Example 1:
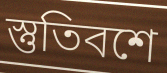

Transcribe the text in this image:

স্তুতিবশে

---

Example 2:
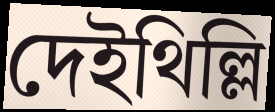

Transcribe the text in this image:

দেইথিল্লি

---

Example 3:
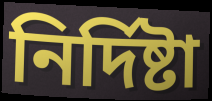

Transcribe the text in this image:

নির্দিষ্টা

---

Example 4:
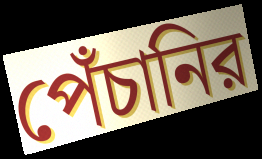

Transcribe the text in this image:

পেঁচানির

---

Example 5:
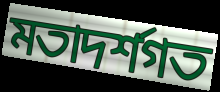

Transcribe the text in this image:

মতাদর্শগত